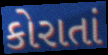
કોરાતાં